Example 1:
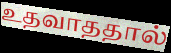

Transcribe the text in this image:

உதவாததால்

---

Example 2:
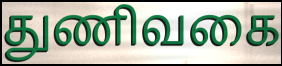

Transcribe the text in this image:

துணிவகை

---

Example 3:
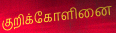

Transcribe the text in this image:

குறிக்கோளினை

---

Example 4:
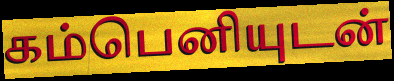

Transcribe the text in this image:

கம்பெனியுடன்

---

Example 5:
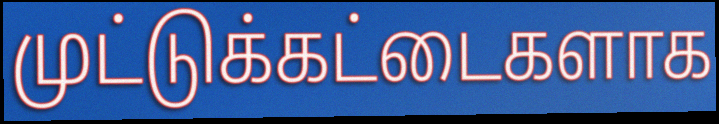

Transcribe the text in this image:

முட்டுக்கட்டைகளாக